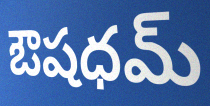
ఔషధమ్